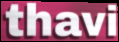
thavi